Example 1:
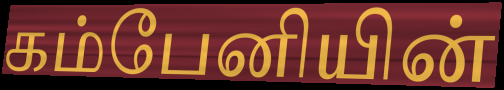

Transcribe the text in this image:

கம்பேனியின்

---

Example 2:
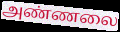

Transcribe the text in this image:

அண்ணலை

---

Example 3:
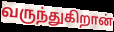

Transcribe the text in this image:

வருந்துகிறான்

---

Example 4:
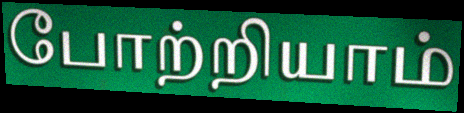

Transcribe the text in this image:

போற்றியாம்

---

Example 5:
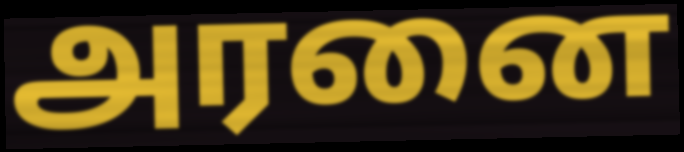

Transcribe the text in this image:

அரனை